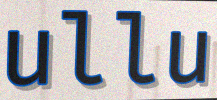
ullu